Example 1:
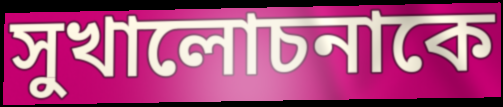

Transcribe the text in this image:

সুখালোচনাকে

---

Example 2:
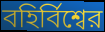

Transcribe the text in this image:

বহির্বিশ্বের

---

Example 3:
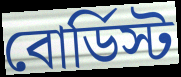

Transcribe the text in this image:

বোর্ডিস্ট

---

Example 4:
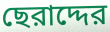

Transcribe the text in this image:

ছেরাদ্দের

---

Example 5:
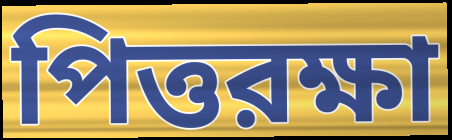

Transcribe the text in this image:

পিত্তরক্ষা